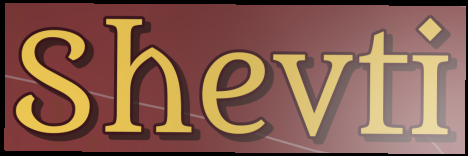
Shevti